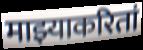
माझ्याकरितां